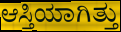
ಆಸ್ತಿಯಾಗಿತ್ತು